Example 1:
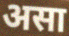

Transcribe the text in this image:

असा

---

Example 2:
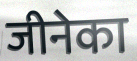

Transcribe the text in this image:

जीनेका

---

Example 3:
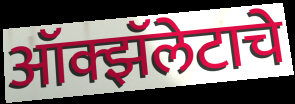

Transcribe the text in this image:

ऑक्झॅलेटाचे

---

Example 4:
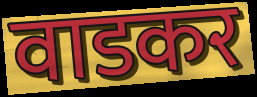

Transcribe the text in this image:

वाडकर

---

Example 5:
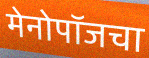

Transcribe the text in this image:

मेनोपॉजचा